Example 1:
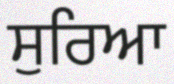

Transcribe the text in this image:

ਸੁਰਿਆ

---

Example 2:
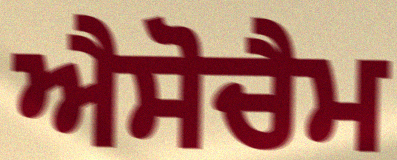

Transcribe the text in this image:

ਐਸੋਚੈਮ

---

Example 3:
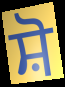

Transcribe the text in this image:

ਸ਼ੋ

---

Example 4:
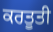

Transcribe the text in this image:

ਕਰਤੂਤੀ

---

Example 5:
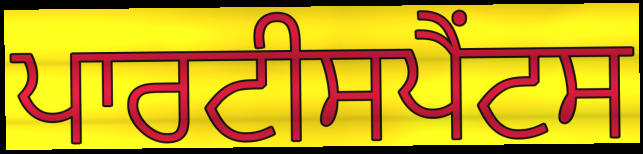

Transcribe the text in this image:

ਪਾਰਟੀਸਪੈਂਟਸ